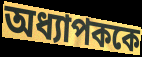
অধ্যাপককে